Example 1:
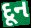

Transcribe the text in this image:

દૂન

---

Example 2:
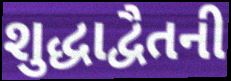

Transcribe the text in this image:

શુદ્ધાદ્વૈતની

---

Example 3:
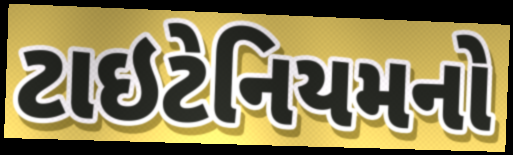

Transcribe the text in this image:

ટાઇટેનિયમનો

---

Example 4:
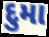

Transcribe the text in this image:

દુમા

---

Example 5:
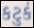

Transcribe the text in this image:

કટુકં